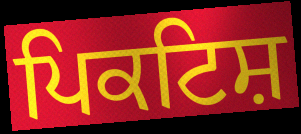
ਪਿਕਟਿਸ਼